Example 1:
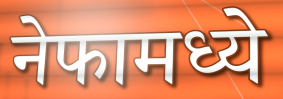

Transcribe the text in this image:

नेफामध्ये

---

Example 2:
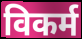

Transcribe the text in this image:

विकर्म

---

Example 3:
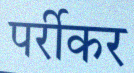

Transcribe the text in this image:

पर्रीकर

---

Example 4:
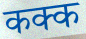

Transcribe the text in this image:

कक्क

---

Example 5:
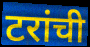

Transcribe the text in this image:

टरांची